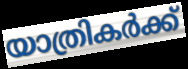
യാത്രികർക്ക്